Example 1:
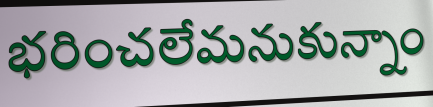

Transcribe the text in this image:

భరించలేమనుకున్నాం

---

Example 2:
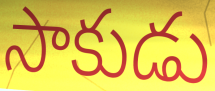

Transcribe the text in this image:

సాకుడు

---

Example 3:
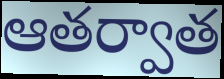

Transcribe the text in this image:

ఆతర్వాత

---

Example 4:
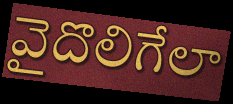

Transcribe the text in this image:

వైదొలిగేలా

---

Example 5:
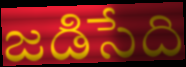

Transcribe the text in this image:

జడిసేది